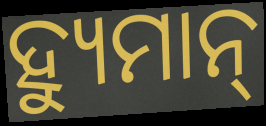
ହ୍ୟୁମାନ୍